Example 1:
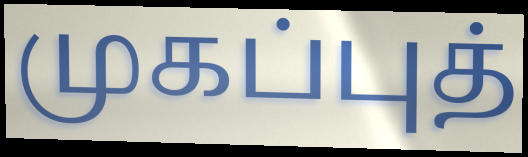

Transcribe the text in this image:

முகப்புத்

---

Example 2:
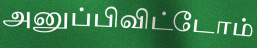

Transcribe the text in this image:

அனுப்பிவிட்டோம்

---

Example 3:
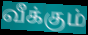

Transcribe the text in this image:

வீக்கும்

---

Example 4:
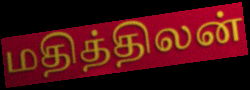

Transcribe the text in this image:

மதித்திலன்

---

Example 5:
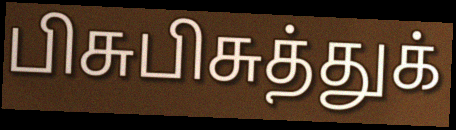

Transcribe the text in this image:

பிசுபிசுத்துக்